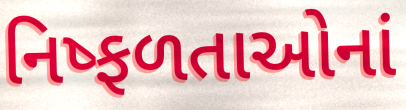
નિષ્ફળતાઓનાં